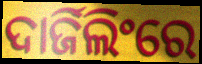
ଦାର୍ଜିଲିଂରେ